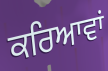
ਕਰਿਆਵਾਂ